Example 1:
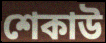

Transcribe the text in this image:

শেকাউ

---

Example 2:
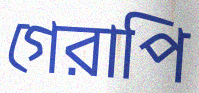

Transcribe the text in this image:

গেরাপি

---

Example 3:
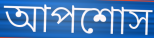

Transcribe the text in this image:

আপশোস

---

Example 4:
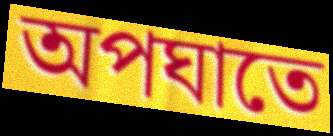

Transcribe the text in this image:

অপঘাতে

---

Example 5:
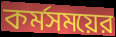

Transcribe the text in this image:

কর্মসময়ের